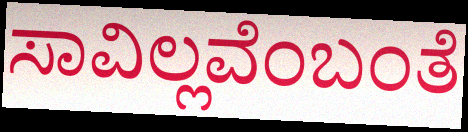
ಸಾವಿಲ್ಲವೆಂಬಂತೆ